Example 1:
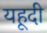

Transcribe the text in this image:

यहूदी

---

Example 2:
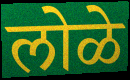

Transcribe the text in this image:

लोळे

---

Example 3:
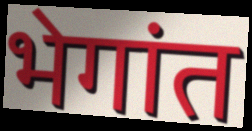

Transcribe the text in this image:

भेगांत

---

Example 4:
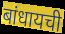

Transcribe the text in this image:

बांधायची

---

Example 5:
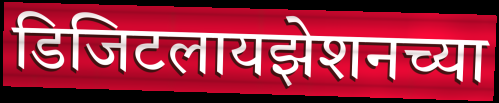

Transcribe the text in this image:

डिजिटलायझेशनच्या